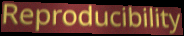
Reproducibility